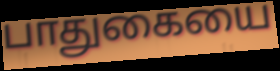
பாதுகையை